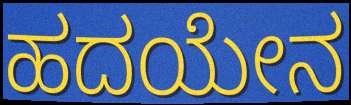
ಹದಯೇನ